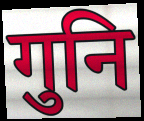
गुनि